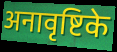
अनावृष्टिके